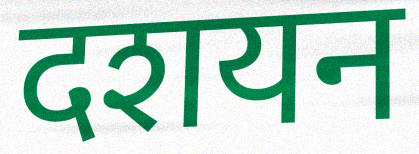
दशयन